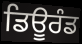
ਡਿਊਰੰਡ